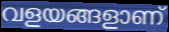
വളയങ്ങളാണ്